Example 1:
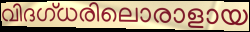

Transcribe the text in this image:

വിദഗ്ധരിലൊരാളായ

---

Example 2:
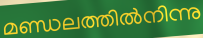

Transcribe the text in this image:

മണ്ഡലത്തിൽനിന്നു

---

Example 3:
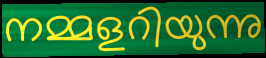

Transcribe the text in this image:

നമ്മളറിയുന്നു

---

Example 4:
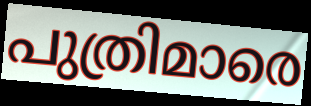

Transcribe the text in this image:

പുത്രിമാരെ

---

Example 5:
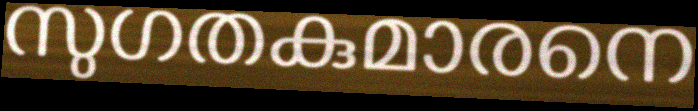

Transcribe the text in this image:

സുഗതകുമാരനെ